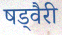
षड्वैरी